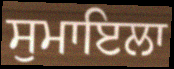
ਸੁਮਾਇਲਾ